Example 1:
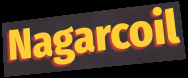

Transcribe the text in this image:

Nagarcoil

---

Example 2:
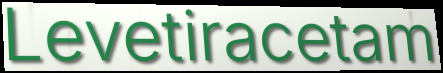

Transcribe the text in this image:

Levetiracetam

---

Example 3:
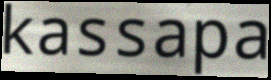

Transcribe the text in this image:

kassapa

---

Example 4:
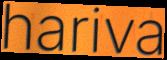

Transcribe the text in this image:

hariva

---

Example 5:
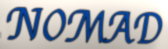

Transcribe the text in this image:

NOMAD